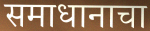
समाधानाचा